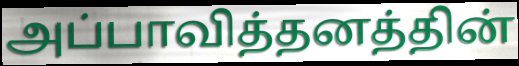
அப்பாவித்தனத்தின்